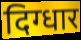
दिग्धार